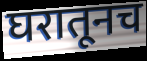
घरातूनच